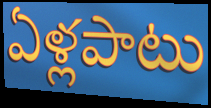
ఏళ్లపాటు